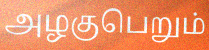
அழகுபெறும்